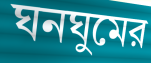
ঘনঘুমের